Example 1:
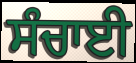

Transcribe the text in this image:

ਸੰਚਾਈ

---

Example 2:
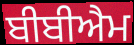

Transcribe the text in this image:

ਬੀਬੀਐਮ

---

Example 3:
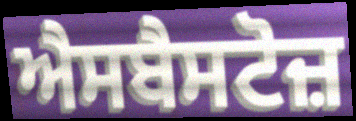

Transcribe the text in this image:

ਐਸਬੈਸਟੋਜ਼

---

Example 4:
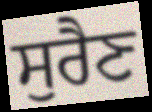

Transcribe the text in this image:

ਸੁਰੈਣ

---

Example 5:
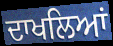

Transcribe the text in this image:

ਦਾਖਲਿਆਂ